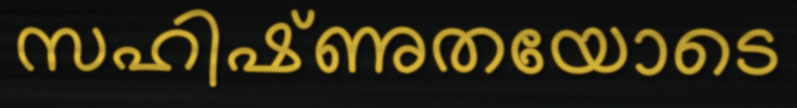
സഹിഷ്‌ണുതയോടെ